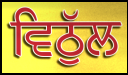
ਵਿਠੁੱਲ